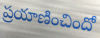
ప్రయాణించిందో